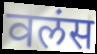
वलंस